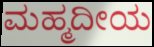
ಮಹ್ಮದೀಯ